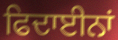
ਫਿਦਾਈਨਾਂ